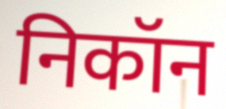
निकॉन